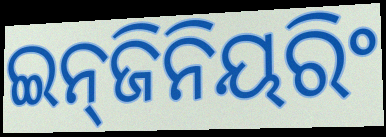
ଇନ୍‍ଜିନିୟରିଂ